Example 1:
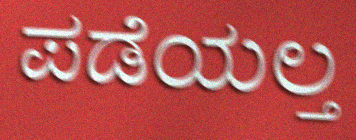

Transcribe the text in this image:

ಪಡೆಯಲ್ತ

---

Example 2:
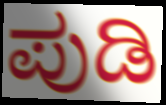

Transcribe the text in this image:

ಪುಡಿ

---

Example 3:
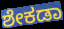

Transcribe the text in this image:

ಶೇಕಡಾ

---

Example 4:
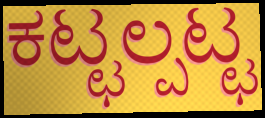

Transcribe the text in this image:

ಕಟ್ಟಲ್ಪಟ್ಟ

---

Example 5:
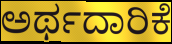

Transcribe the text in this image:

ಅರ್ಥದಾರಿಕೆ